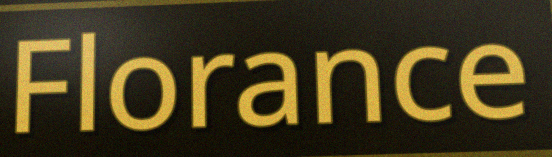
Florance